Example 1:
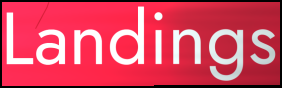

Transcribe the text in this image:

Landings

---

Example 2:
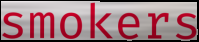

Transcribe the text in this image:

smokers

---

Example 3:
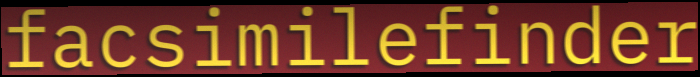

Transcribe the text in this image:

facsimilefinder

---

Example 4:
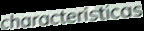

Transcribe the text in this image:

characteristicas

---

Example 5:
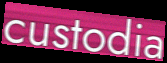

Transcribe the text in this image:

custodia